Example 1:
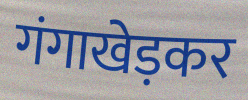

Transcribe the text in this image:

गंगाखेड़कर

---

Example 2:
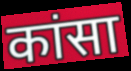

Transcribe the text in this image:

कांसा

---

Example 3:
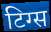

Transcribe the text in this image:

टिग्स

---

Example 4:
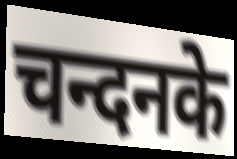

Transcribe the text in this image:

चन्दनके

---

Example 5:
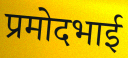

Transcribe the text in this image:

प्रमोदभाई